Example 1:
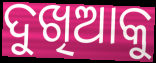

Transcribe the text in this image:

ଦୁଖିଆକୁ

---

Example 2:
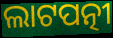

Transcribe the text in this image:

ଲାଟପତ୍ନୀ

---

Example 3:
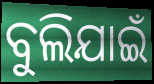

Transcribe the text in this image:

ବୁଲିଯାଇଁ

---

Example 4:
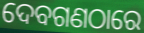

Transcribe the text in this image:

ଦେବଗଣଠାରେ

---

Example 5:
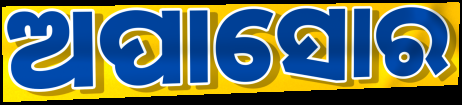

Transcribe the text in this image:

ଅପାସୋର